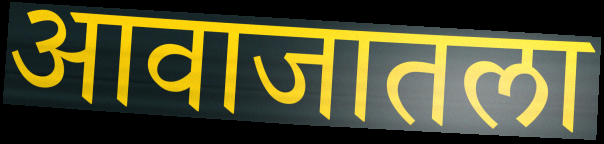
आवाजातला